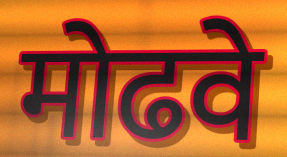
मोढवे